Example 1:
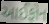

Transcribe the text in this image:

આઈફોન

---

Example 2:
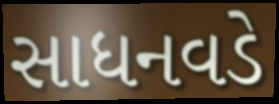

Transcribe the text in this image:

સાધનવડે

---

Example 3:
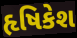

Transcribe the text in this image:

હૃષિકેશ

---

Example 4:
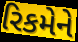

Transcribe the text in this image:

રિકમેને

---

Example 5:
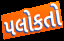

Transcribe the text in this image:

પલોકતો